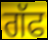
ਗੱਫ